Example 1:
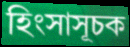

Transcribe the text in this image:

হিংসাসূচক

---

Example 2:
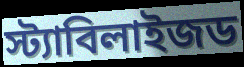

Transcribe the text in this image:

স্ট্যাবিলাইজড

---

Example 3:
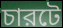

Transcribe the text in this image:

চারটে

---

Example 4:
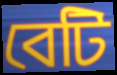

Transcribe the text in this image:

বেটি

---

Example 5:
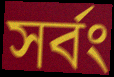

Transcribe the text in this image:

সর্বং